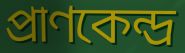
প্ৰাণকেন্দ্ৰ